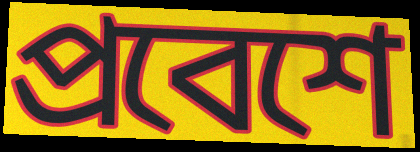
প্রবেশে